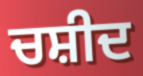
ਚਸ਼ੀਦ